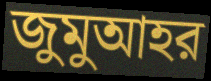
জুমুআহর